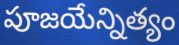
పూజయేన్నిత్యం